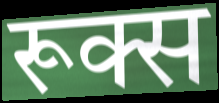
रूक्स